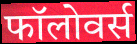
फॉलोवर्स